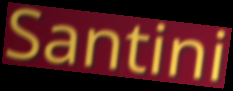
Santini